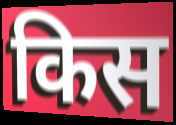
किस